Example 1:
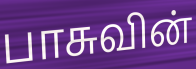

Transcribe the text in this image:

பாசுவின்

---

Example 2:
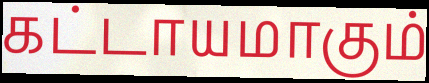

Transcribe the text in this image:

கட்டாயமாகும்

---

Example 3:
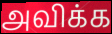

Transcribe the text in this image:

அவிக்க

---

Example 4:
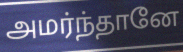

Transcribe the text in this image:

அமர்ந்தானே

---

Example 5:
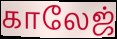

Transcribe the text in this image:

காலேஜ்